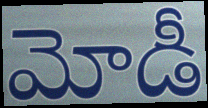
మోడీ